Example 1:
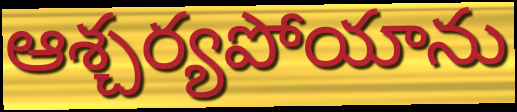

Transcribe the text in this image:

ఆశ్చర్యపోయాను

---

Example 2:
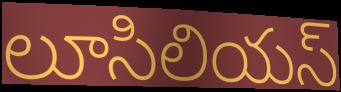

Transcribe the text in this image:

లూసిలియస్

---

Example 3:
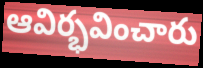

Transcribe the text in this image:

ఆవిర్భవించారు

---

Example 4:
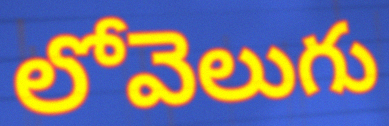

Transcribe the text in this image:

లోవెలుగు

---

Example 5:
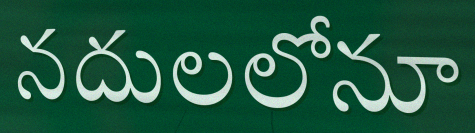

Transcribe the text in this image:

నదులలోనూ